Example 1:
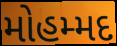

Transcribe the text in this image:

મોહમ્મદ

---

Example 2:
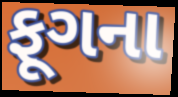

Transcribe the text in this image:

ફૂગના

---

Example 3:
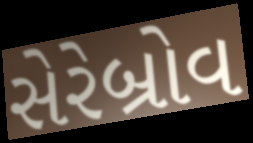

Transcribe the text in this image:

સેરેબ્રોવ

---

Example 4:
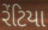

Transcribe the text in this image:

રેંટિયા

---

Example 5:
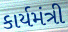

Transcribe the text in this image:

કાર્યમંત્રી